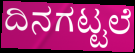
ದಿನಗಟ್ಟಲೆ